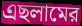
এছলামের